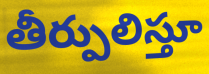
తీర్పులిస్తూ